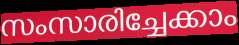
സംസാരിച്ചേക്കാം